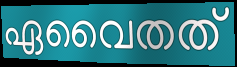
ഏവൈതത്